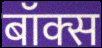
बॉक्‍स